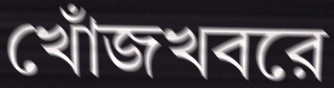
খোঁজখবরে